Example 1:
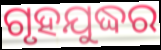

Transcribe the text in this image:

ଗୃହଯୁଦ୍ଧର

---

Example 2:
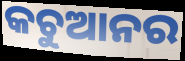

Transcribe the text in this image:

କଚୁଆନର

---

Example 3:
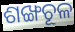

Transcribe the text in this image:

ଶଙ୍ଖଚୂଳ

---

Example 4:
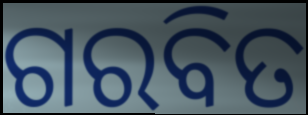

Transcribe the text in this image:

ଗରବିତ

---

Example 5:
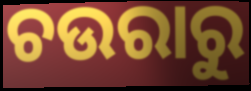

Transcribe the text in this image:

ଚଉରାରୁ